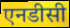
एनडीसी